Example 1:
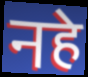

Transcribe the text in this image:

नहे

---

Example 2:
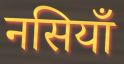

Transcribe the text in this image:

नसियाँ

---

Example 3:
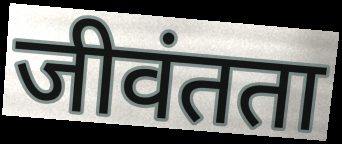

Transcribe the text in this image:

जीवंतता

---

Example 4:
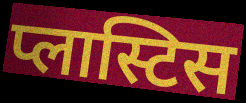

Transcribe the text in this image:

प्लास्टिस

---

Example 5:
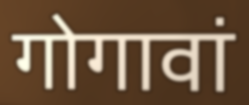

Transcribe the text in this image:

गोगावां